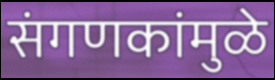
संगणकांमुळे